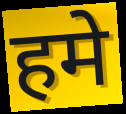
हमे